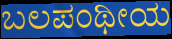
ಬಲಪಂಥೀಯ